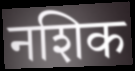
नशिक